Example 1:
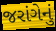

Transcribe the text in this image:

જરાંગેનું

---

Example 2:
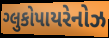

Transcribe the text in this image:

ગ્લુકોપાયરેનોઝ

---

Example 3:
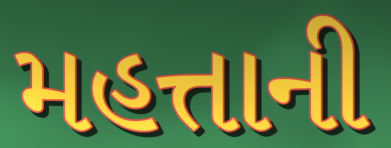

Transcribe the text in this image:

મહત્તાની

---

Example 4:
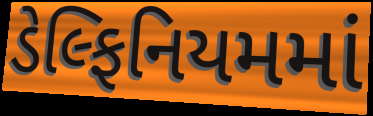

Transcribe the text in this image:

ડેલ્ફિનિયમમાં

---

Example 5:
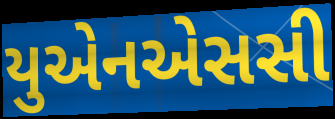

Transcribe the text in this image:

યુએનએસસી